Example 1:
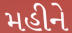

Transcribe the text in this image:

મહીને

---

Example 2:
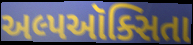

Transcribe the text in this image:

અલ્પઑક્સિતા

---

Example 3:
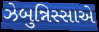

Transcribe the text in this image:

ઝેબુન્નિસ્સાએ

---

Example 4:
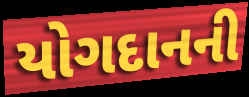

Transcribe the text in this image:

યોગદાનની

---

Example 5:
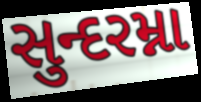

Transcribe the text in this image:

સુન્દરમ્ના